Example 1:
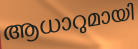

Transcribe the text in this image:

ആധാറുമായി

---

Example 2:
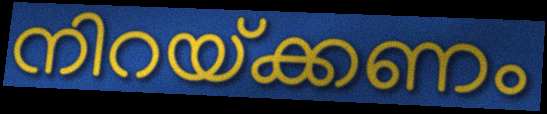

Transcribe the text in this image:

നിറയ്‌ക്കണം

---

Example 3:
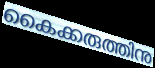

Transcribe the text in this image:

കൈക്കരുത്തിനു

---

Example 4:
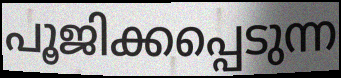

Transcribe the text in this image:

പൂജിക്കപ്പെടുന്ന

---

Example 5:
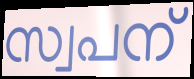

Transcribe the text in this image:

സ്വപന്